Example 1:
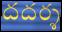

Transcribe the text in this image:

దదర్శ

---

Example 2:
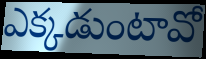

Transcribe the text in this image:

ఎక్కడుంటావో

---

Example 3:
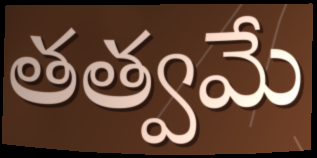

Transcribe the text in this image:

తత్వమే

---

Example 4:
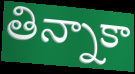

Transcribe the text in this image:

తిన్నాకా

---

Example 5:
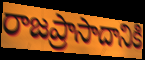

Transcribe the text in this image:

రాజప్రాసాదానికి